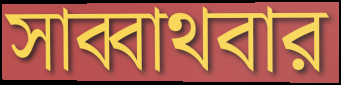
সাব্বাথবার